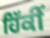
ਹਿੱਕੀਂ